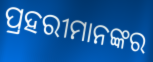
ପ୍ରହରୀମାନଙ୍କର